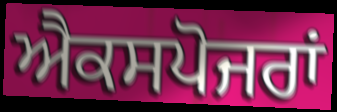
ਐਕਸਪੋਜਰਾਂ